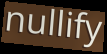
nullify